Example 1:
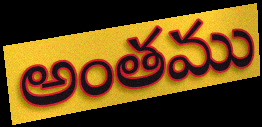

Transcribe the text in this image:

అంతము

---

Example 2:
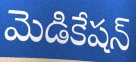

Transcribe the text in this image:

మెడికేషన్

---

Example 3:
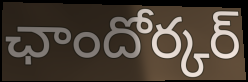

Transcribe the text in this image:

ఛాందోర్కర్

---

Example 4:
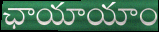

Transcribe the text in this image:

ఛాయాయాం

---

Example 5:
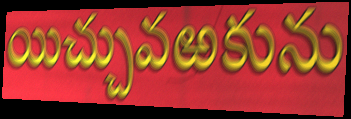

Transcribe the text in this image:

యిచ్చువఱకును